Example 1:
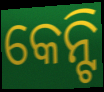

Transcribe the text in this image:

କେନ୍ଟି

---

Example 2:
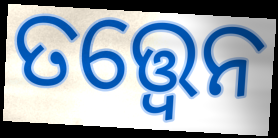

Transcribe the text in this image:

ତତ୍ତ୍ଵେନ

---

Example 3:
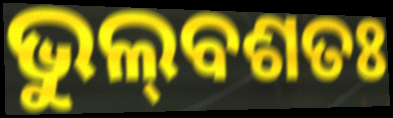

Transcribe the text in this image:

ଭୁଲ୍‌ବଶତଃ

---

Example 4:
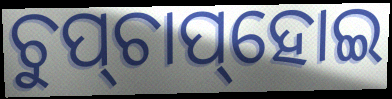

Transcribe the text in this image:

ଚୁପ୍‌ଚାପ୍‌ହୋଇ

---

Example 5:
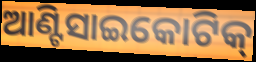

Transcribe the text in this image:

ଆଣ୍ଟିସାଇକୋଟିକ୍